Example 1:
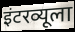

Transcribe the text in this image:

इंटरव्यूला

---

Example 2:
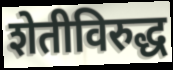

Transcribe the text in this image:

शेतीविरुद्ध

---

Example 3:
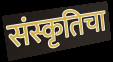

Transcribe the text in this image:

संस्कृतिचा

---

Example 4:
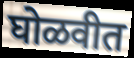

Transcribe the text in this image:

घोळवीत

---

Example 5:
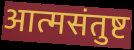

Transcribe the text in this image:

आत्मसंतुष्ट